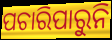
ପଚାରିପାରୁନି